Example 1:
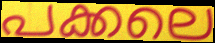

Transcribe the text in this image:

പക്കലെ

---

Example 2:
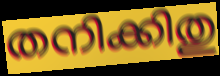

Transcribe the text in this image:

തനിക്കിതു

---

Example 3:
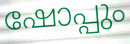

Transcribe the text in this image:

ഷോപ്പും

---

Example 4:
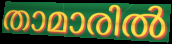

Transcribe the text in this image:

താമാരിൽ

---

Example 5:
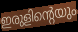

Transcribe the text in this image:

ഇരുളിന്റെയും